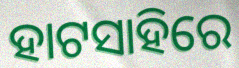
ହାଟସାହିରେ